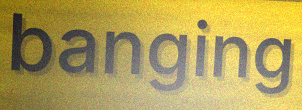
banging